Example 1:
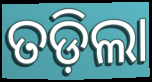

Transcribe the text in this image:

ତଡ଼ିଲା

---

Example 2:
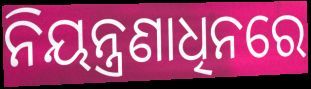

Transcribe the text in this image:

ନିୟନ୍ତ୍ରଣାଧିନରେ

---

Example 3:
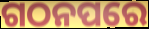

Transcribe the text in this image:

ଗଠନପରେ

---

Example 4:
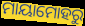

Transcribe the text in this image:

ମାୟାମୋହରୁ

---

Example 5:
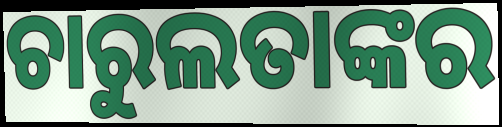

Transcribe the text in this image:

ଚାରୁଲତାଙ୍କର